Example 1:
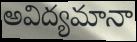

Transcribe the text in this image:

అవిద్యమానా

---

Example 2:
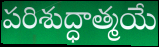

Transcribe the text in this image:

పరిశుద్ధాత్మయే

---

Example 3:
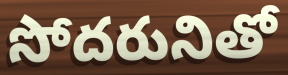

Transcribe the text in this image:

సోదరునితో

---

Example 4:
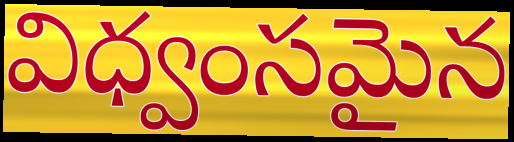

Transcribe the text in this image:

విధ్వంసమైన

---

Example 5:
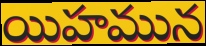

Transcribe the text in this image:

యిహమున